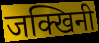
जक्खिनी